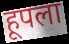
हूपला